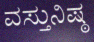
ವಸ್ತುನಿಷ್ಠ